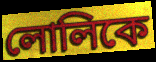
লোলিকে